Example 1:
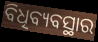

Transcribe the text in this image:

ବିଧିବ୍ୟବସ୍ଥାର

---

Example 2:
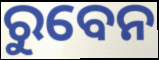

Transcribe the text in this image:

ରୁବେନ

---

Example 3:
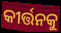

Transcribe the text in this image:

କୀର୍ତ୍ତନକୁ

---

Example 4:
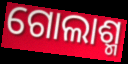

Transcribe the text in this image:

ଗୋଲାଶ୍ମ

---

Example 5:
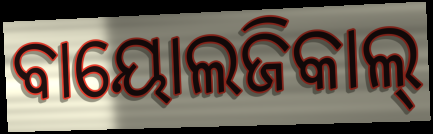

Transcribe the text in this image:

ବାୟୋଲଜିକାଲ୍